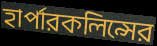
হার্পারকলিন্সের